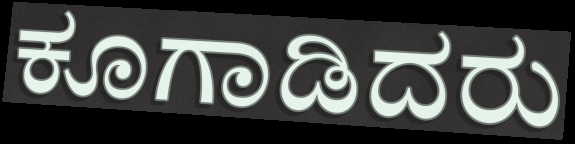
ಕೂಗಾಡಿದರು